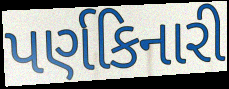
પર્ણકિનારી